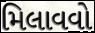
મિલાવવો